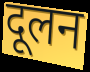
दूलन